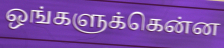
ஒங்களுக்கென்ன